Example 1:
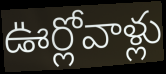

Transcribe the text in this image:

ఊర్లోవాళ్లు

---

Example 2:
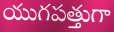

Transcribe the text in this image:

యుగపత్తుగా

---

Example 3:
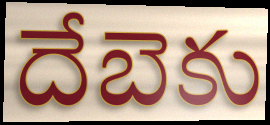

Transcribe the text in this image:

దేబెకు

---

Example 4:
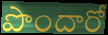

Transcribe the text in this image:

పొందారో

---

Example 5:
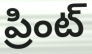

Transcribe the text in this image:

ప్రింట్